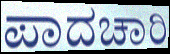
ಪಾದಚಾರಿ